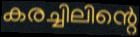
കരച്ചിലിന്റെ